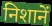
निशानें